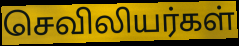
செவிலியர்கள்